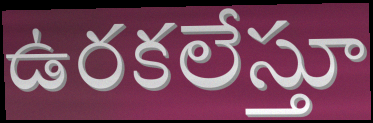
ఉరకలేస్తూ